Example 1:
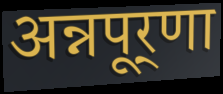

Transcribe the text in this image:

अन्नपूर्णा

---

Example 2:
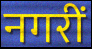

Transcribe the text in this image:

नगरीं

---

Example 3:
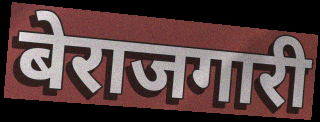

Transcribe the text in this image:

बेराजगारी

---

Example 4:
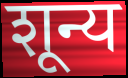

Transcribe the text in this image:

शून्य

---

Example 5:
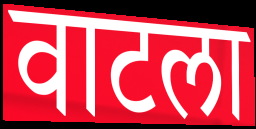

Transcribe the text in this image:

वाटला